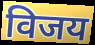
विजय